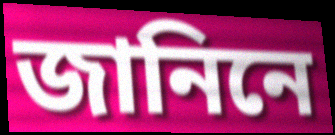
জানিনে